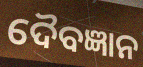
ଦୈବଜ୍ଞାନ